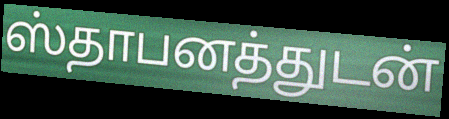
ஸ்தாபனத்துடன்